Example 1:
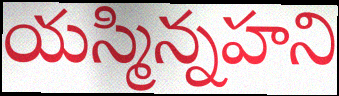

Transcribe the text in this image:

యస్మిన్నహని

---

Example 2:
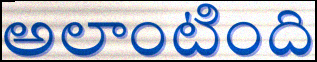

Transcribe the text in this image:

అలాంటింది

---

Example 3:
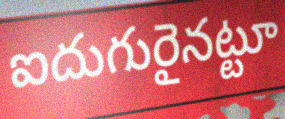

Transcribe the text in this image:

ఐదుగురైనట్టూ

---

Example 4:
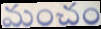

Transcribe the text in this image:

మంచం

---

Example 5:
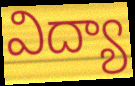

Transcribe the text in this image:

విద్యా